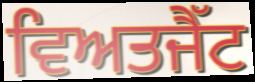
ਵਿਅਤਜੈੱਟ